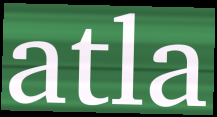
atla